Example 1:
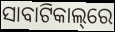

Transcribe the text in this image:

ସାବାଟିକାଲ୍‌ରେ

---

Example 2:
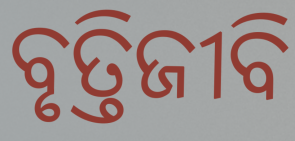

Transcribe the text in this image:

ବୃତ୍ତିଜୀବି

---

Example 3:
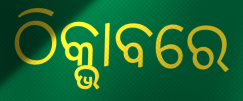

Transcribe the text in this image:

ଠିକ୍ଭାବରେ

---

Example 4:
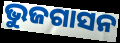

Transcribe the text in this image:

ଭୁଜଗାସନ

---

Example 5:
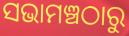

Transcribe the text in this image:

ସଭାମଞ୍ଚଠାରୁ